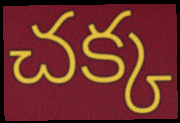
చక్క